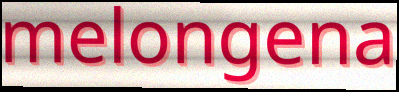
melongena